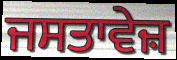
ਜਸਤਾਵੇਜ਼